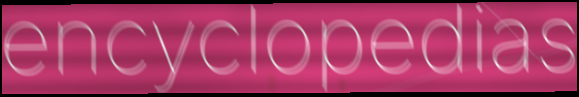
encyclopedias